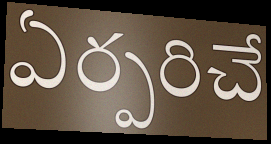
ఏర్పరిచే